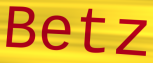
Betz